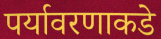
पर्यावरणाकडे